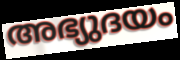
അഭ്യുദയം